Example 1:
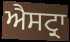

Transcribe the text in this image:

ਐਸਟ੍ਰਾ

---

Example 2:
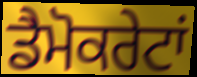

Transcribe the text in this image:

ਡੈਮੋਕਰੇਟਾਂ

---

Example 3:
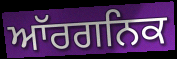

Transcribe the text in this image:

ਆੱਰਗਨਿਕ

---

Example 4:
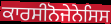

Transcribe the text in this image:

ਕਾਰਸੀਨੋਜੇਨੇਸਿਸ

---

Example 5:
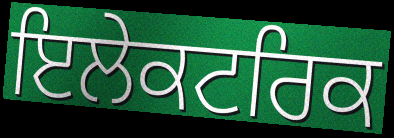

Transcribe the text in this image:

ਇਲੇਕਟਰਿਕ